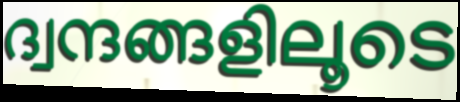
ദ്വന്ദങ്ങളിലൂടെ